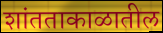
शांतताकाळातील